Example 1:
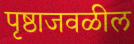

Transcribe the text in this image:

पृष्ठाजवळील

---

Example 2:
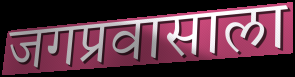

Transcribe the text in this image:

जगप्रवासाला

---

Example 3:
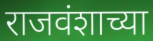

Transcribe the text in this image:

राजवंशाच्या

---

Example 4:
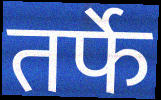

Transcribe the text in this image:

तर्फे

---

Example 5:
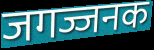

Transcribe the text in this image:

जगज्जनक